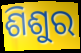
ଶିଶୁର